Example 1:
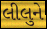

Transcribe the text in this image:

લીલુને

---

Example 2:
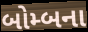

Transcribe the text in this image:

બોમ્બના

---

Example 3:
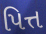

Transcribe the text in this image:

પિત્ત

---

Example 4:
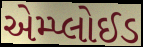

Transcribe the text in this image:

એમ્પ્લોઈડ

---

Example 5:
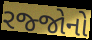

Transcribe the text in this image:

રજ્જોનો